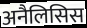
अनैलिसिस